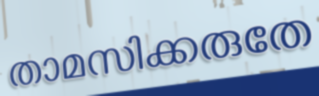
താമസിക്കരുതേ